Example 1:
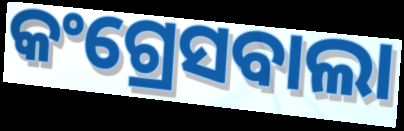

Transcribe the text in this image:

କଂଗ୍ରେସବାଲା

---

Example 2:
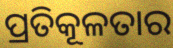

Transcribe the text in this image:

ପ୍ରତିକୂଳତାର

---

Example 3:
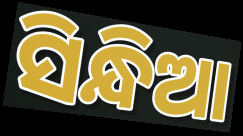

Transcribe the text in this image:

ସିନ୍ଧିଆ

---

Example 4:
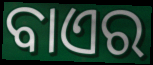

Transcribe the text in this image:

ବାଏର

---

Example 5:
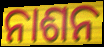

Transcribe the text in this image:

ନାଶନ